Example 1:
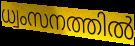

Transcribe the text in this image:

ധ്വംസനത്തിൽ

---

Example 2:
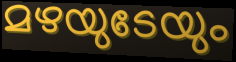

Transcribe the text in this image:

മഴയുടേയും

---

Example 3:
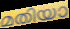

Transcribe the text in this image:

മതിയാ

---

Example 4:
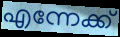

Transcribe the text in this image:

എന്നേക്ക്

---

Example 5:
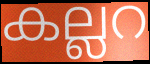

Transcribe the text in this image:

കല്ലറ